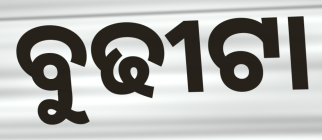
ବୁଢୀଟା